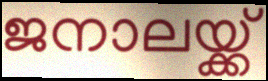
ജനാലയ്ക്ക്